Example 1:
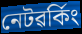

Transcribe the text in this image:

নেটৱৰ্কিং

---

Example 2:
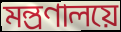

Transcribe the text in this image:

মন্ত্ৰণালয়ে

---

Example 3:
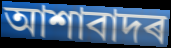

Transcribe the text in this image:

আশাবাদৰ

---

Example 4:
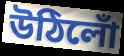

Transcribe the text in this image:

উঠিলোঁ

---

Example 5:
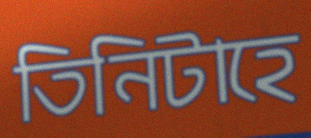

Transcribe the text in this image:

তিনিটাহে